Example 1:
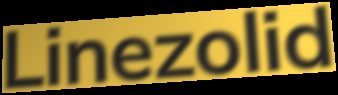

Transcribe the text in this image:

Linezolid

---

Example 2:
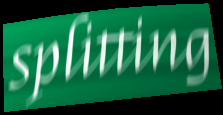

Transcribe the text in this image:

splitting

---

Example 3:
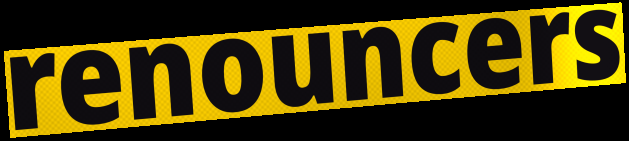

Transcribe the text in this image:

renouncers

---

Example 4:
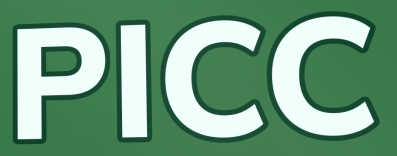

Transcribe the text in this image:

PICC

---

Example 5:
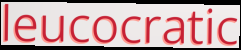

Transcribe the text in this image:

leucocratic